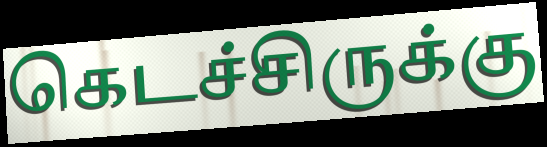
கெடச்சிருக்கு